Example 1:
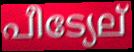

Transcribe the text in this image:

പീട്യേല്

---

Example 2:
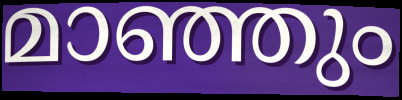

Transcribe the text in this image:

മാഞ്ഞും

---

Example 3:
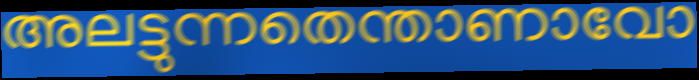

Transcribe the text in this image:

അലട്ടുന്നതെന്താണാവോ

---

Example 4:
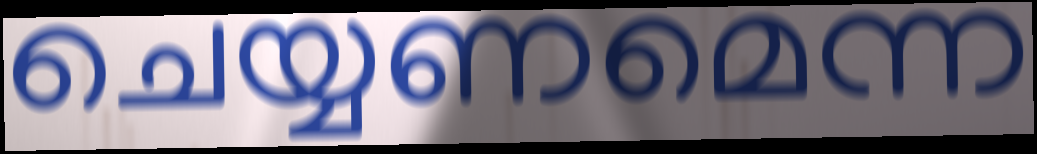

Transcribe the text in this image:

ചെയ്യണമെന്ന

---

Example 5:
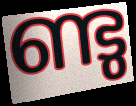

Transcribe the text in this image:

ണ്ടു